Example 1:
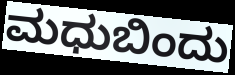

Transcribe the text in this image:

ಮಧುಬಿಂದು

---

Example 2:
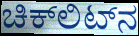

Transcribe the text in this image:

ಚಿಕ್‌ಲಿಟ್‌ನ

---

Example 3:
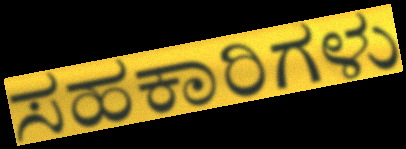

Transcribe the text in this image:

ಸಹಕಾರಿಗಳು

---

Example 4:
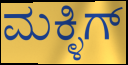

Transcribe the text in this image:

ಮಕ್ಳಿಗ್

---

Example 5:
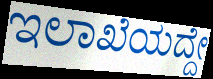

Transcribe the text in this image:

ಇಲಾಖೆಯದ್ದೇ